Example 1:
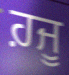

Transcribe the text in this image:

ਹ਼ਜੂ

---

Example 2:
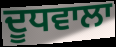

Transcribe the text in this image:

ਦੂਧਵਾਲਾ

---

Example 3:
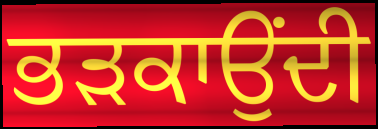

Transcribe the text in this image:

ਭੜਕਾਉਂਦੀ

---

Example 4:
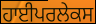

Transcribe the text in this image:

ਹਾਈਪਰਲੇਕਸ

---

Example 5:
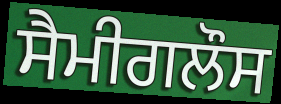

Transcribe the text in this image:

ਸੈਮੀਗਲੌਸ